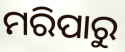
ମରିପାରୁ